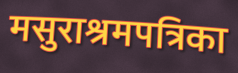
मसुराश्रमपत्रिका